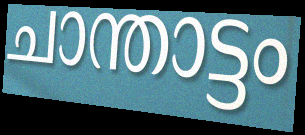
ചാന്താട്ടം